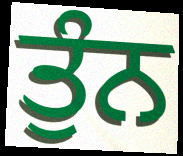
ਤੁੰਨ